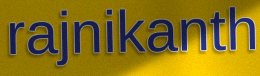
rajnikanth